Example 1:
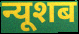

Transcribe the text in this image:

न्यूशब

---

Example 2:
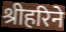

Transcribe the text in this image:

श्रीहरिने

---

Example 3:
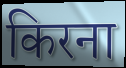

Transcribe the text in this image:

किरना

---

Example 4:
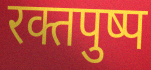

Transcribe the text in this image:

रक्तपुष्प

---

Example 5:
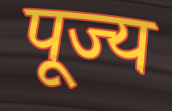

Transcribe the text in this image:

पूज्य